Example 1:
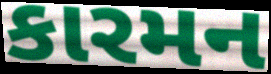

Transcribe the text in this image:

કારમન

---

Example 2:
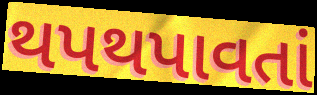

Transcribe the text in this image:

થપથપાવતાં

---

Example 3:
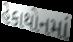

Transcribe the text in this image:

હેકાથોનમાં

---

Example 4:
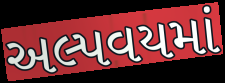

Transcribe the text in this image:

અલ્પવયમાં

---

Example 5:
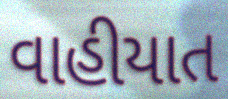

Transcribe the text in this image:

વાહીયાત